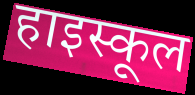
हाइस्कूल